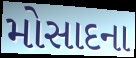
મોસાદના